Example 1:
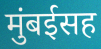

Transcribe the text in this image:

मुंबईसह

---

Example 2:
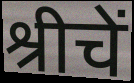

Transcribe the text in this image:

श्रीचें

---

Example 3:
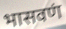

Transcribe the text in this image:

भासवणं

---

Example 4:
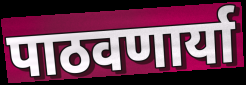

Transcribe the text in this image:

पाठवणार्या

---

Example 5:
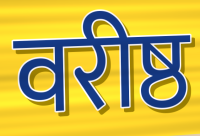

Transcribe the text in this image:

वरीष्ठ